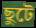
ছুটে